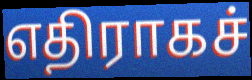
எதிராகச்